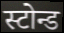
स्टोन्ड